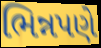
ભિન્નપણે